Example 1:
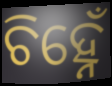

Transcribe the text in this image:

ଚିହ୍ନେଁ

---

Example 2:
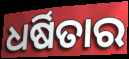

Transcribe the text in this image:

ଧର୍ଷିତାର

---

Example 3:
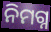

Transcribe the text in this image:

ନିମଗ୍ନ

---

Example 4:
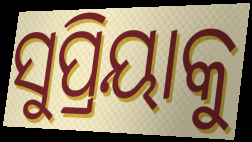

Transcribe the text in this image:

ସୁପ୍ରିୟାକୁ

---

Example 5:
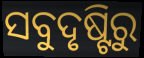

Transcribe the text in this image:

ସବୁଦୃଷ୍ଟିରୁ